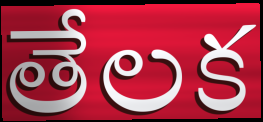
తేలక